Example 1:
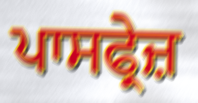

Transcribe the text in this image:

ਪਾਸਫ੍ਰੇਜ਼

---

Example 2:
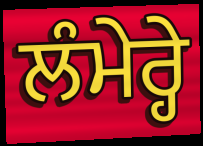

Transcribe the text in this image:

ਲੰਮੇਰ੍ਹੇ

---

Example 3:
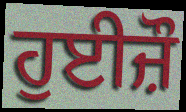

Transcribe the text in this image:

ਹੁਈਜ਼ੌ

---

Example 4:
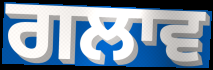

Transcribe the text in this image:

ਗਲਾਵ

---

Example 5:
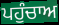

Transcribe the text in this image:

ਪਹੁੰਚਾਅ